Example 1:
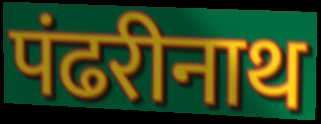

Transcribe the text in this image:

पंढरीनाथ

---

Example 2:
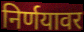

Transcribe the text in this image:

निर्णयावर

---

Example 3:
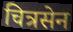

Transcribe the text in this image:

चित्रसेन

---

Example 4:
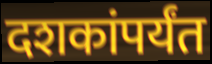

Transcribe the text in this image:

दशकांपर्यंत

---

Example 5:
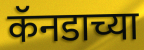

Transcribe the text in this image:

कॅनडाच्या